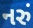
નરું